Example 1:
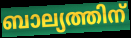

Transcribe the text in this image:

ബാല്യത്തിന്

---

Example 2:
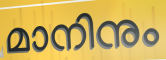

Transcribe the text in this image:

മാനിനും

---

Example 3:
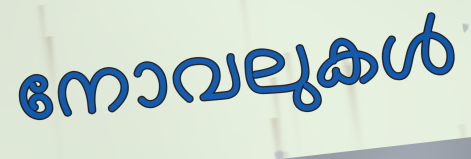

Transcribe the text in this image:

നോവലുകൾ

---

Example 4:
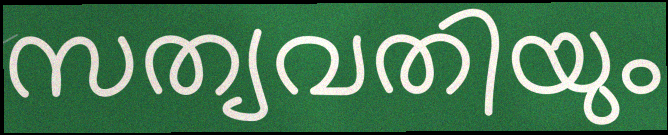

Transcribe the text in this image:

സത്യവതിയും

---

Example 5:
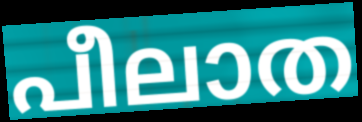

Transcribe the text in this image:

പീലാത